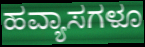
ಹವ್ಯಾಸಗಳೂ